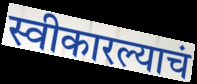
स्वीकारल्याचं